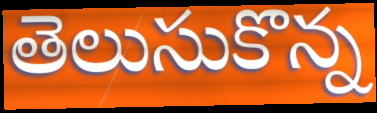
తెలుసుకొన్న